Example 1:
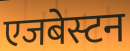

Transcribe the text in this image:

एजबेस्‍टन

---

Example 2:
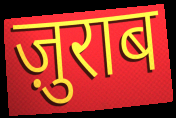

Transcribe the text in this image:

ज़ुराब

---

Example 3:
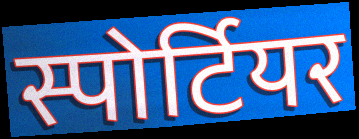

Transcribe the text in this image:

स्पोर्टियर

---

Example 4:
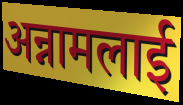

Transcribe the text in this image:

अन्नामलाई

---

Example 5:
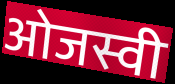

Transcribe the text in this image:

ओजस्वी